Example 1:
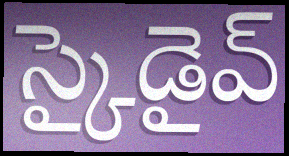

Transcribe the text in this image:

స్కైడైవ్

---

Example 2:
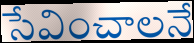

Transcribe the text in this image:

సేవించాలనే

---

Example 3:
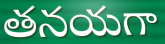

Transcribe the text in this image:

తనయగా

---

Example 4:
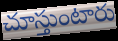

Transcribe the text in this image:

చూస్తుంటారు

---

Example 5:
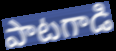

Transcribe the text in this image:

పాటగాడి